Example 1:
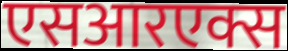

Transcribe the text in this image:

एसआरएक्स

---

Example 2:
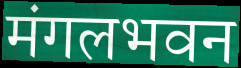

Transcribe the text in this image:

मंगलभवन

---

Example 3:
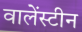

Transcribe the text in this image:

वालेंस्टीन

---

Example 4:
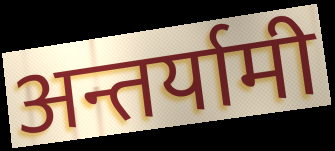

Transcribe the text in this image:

अन्तर्यामी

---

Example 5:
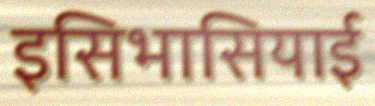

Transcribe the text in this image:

इसिभासियाई